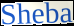
Sheba